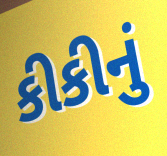
કીકીનું